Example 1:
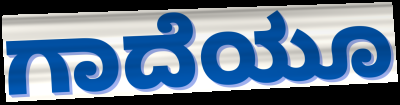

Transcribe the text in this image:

ಗಾದೆಯೂ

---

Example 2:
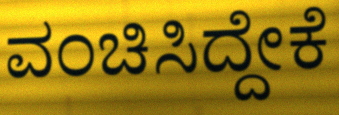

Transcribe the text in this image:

ವಂಚಿಸಿದ್ದೇಕೆ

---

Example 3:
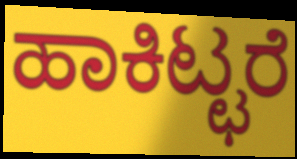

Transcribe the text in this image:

ಹಾಕಿಟ್ಟರೆ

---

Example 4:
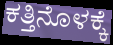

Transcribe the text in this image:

ಕತ್ತಿನೊಳಕ್ಕೆ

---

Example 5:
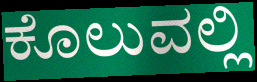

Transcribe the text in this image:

ಕೊಲುವಲ್ಲಿ